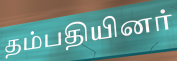
தம்பதியினர்